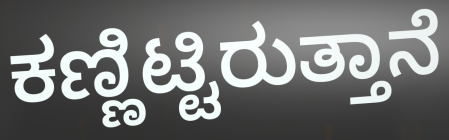
ಕಣ್ಣಿಟ್ಟಿರುತ್ತಾನೆ